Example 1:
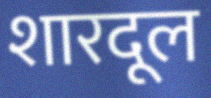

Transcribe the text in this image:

शारदूल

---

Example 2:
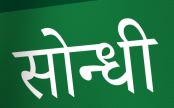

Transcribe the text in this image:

सोन्धी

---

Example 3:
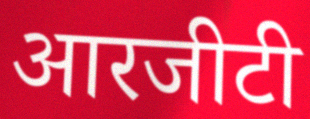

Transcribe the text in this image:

आरजीटी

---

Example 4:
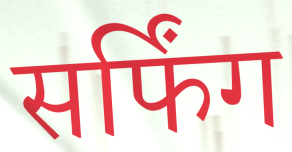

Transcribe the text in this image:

सर्फिंग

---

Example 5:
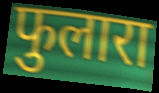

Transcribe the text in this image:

फुलारा